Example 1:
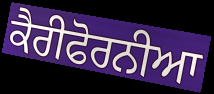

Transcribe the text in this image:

ਕੈਰੀਫੋਰਨੀਆ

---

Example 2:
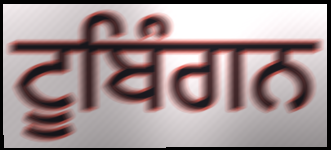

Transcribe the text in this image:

ਟੂਬਿੰਗਨ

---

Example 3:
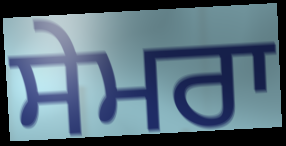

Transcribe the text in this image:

ਸੇਮਰਾ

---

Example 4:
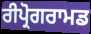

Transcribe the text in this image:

ਰੀਪ੍ਰੋਗਰਾਮਡ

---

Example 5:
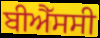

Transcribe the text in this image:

ਬੀਐੱਸਸੀ